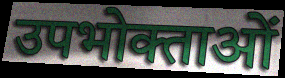
उपभोक्‍ताओं